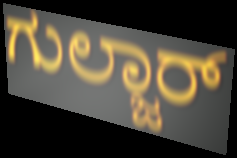
ಗುಲ್ಜಾರ್